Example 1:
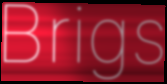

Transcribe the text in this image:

Brigs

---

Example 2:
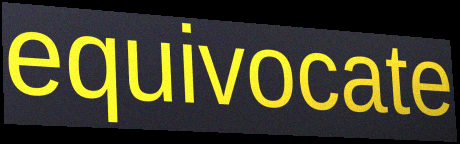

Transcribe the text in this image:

equivocate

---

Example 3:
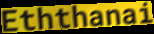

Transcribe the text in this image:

Eththanai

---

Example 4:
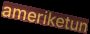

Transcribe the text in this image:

ameriketun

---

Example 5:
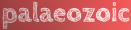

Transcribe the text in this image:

palaeozoic